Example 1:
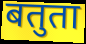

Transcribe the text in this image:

बतुता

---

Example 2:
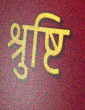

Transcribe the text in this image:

श्रुष्टि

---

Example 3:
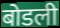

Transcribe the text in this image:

बोडली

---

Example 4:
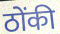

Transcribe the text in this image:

ठोंकी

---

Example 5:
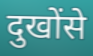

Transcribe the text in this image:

दुखोंसे